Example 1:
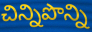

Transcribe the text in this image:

చిన్నిపొన్ని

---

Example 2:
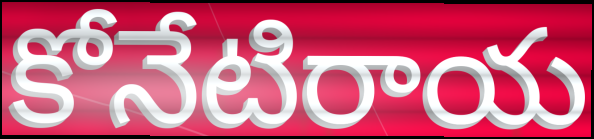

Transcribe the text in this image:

కోనేటిరాయ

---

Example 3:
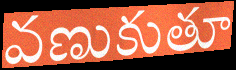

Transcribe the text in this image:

వణుకుతూ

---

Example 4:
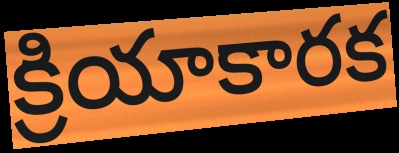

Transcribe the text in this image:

క్రియాకారక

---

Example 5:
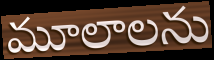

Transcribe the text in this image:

మూలాలను